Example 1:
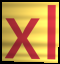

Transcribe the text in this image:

xl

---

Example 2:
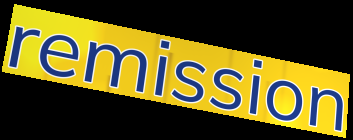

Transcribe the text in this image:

remission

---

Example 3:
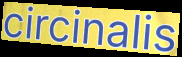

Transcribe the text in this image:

circinalis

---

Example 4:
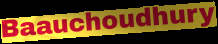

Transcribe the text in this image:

Baauchoudhury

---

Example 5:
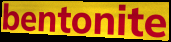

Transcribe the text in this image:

bentonite